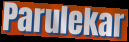
Parulekar